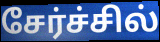
சேர்ச்சில்